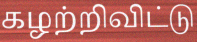
கழற்றிவிட்டு